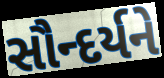
સૌન્દર્યને